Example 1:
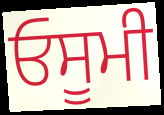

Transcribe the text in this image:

ਓਸੂਮੀ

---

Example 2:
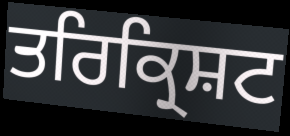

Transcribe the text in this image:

ਤਰਿਕ੍ਰਿਸ਼ਟ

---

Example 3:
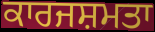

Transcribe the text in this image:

ਕਾਰਜਸ਼ਮਤਾ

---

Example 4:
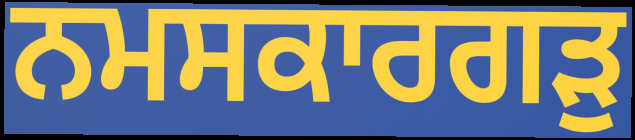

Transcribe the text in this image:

ਨਮਸਕਾਰਗੜੁ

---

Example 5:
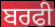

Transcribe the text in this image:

ਬਰਫੀ